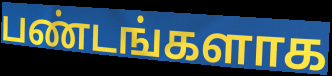
பண்டங்களாக